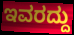
ಇವರದ್ದು